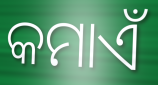
କମାଏଁ